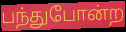
பந்துபோன்ற